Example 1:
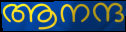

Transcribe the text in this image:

ആനന്ദ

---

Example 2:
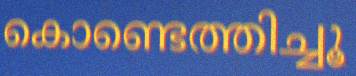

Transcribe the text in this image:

കൊണ്ടെത്തിച്ചൂ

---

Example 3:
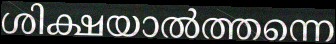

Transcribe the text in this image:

ശിക്ഷയാൽത്തന്നെ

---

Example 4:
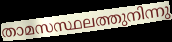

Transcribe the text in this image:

താമസസ്ഥലത്തുനിന്നു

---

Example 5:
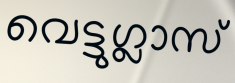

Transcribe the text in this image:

വെട്ടുഗ്ലാസ്